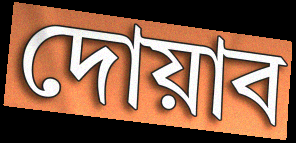
দোয়াব